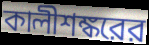
কালীশঙ্করের